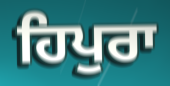
ਹਿਪੁਰਾ